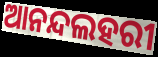
ଆନନ୍ଦଲହରୀ